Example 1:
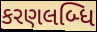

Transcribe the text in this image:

કરણલબ્ધિ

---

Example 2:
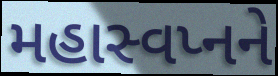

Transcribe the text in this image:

મહાસ્વપ્નને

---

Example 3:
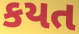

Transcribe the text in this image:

કયત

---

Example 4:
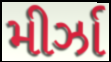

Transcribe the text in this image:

મીર્ઝા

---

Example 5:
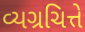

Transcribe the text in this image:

વ્યગ્રચિત્તે